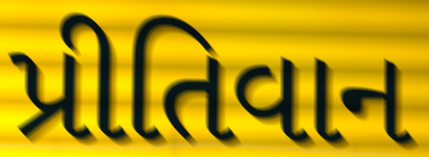
પ્રીતિવાન